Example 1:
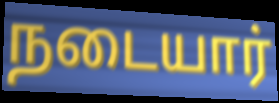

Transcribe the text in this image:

நடையார்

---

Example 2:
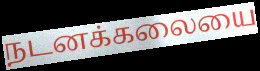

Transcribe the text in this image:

நடனக்கலையை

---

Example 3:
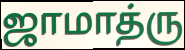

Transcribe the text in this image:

ஜாமாத்ரு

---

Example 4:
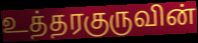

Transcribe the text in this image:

உத்தரகுருவின்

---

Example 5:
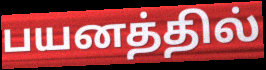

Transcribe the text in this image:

பயனத்தில்